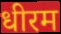
धीरम